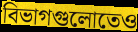
বিভাগগুলোতেও